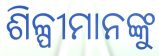
ଶିଳ୍ପୀମାନଙ୍କୁ